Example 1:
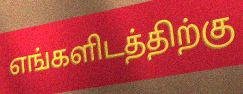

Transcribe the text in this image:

எங்களிடத்திற்கு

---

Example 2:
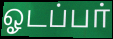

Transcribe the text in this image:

ஓடப்பர்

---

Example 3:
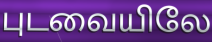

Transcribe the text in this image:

புடவையிலே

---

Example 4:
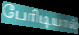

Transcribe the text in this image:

பேரிடியால்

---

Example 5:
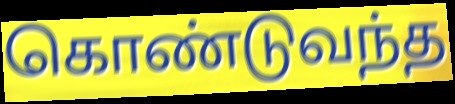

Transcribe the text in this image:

கொண்டுவந்த